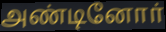
அண்டினோர்